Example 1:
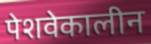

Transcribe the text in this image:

पेशवेकालीन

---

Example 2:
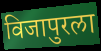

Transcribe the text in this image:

विजापुरला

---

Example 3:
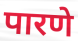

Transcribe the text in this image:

पारणे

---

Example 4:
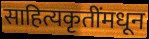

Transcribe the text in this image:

साहित्यकृतींमधून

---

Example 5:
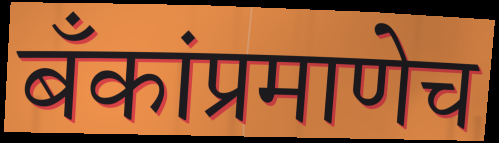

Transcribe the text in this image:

बॅंकांप्रमाणेच